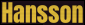
Hansson